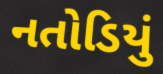
નતોડિયું